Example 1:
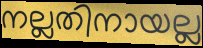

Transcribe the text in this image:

നല്ലതിനായല്ല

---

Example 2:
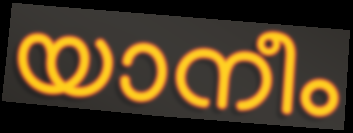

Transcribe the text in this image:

യാനീം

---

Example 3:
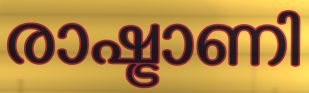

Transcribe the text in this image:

രാഷ്ട്രാണി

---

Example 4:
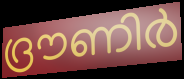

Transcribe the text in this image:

ദ്രൗണിർ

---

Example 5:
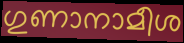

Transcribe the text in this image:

ഗുണാനാമീശ